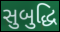
સુબુદ્ધિ